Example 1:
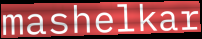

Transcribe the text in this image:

mashelkar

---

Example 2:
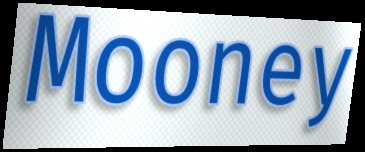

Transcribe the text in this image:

Mooney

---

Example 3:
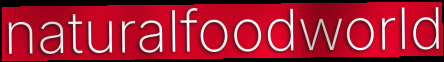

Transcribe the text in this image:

naturalfoodworld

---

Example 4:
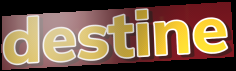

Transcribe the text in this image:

destine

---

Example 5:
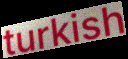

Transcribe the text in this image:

turkish